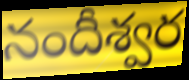
నందీశ్వర